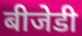
बीजेडी